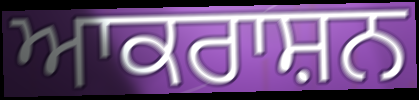
ਆਕਰਾਸ਼ਨ